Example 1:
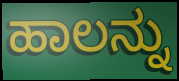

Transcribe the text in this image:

ಹಾಲನ್ನು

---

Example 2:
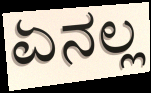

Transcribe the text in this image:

ಏನಲ್ಲ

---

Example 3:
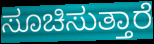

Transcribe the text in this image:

ಸೂಚಿಸುತ್ತಾರೆ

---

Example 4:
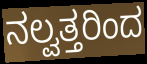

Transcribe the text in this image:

ನಲ್ವತ್ತರಿಂದ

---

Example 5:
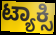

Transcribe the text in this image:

ಟ್ಯಾಕ್ಸಿ